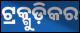
ଟ୍ରକ୍ଗୁଡ଼ିକର